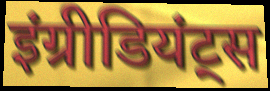
इंग्रीडियंट्स